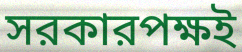
সরকারপক্ষই